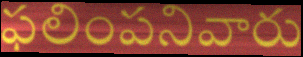
ఫలింపనివారు